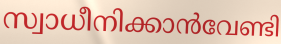
സ്വാധീനിക്കാൻവേണ്ടി